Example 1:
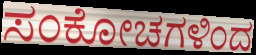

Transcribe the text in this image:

ಸಂಕೋಚಗಳಿಂದ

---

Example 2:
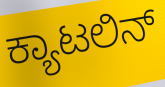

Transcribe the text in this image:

ಕ್ಯಾಟಲಿನ್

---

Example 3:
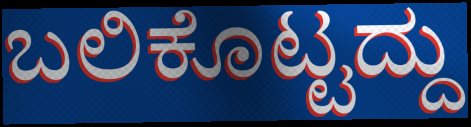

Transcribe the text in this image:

ಬಲಿಕೊಟ್ಟದ್ದು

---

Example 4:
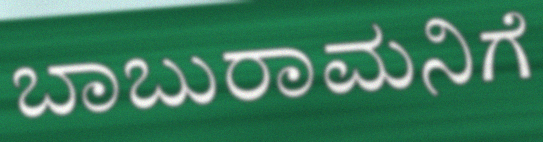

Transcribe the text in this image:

ಬಾಬುರಾಮನಿಗೆ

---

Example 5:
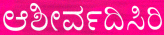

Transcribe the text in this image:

ಆಶೀರ್ವದಿಸಿರಿ